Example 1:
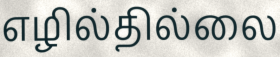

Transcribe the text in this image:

எழில்தில்லை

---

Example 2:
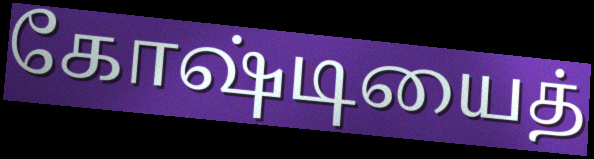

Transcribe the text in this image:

கோஷ்டியைத்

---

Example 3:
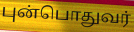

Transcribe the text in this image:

புன்பொதுவர்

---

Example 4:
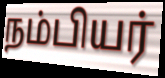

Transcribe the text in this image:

நம்பியர்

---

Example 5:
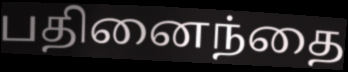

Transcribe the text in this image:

பதினைந்தை